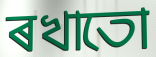
ৰখাতো